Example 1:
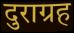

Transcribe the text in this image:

दुराग्रह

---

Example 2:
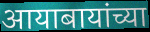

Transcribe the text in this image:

आयाबायांच्या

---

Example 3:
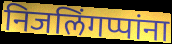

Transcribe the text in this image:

निजलिंगप्पांना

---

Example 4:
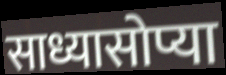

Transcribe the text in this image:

साध्यासोप्या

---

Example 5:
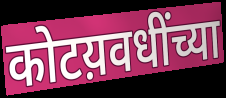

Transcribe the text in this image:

कोटय़वधींच्या